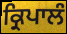
ਕ੍ਰਿਪਾਲੰ